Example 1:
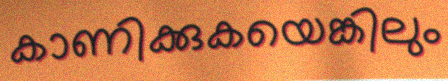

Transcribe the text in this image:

കാണിക്കുകയെങ്കിലും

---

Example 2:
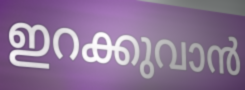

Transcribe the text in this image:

ഇറക്കുവാൻ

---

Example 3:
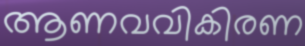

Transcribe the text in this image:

ആണവവികിരണ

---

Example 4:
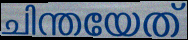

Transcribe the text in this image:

ചിന്തയേത്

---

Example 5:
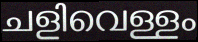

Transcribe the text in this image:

ചളിവെള്ളം